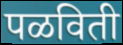
पळविती